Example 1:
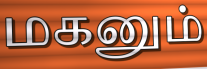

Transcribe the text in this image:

மகனும்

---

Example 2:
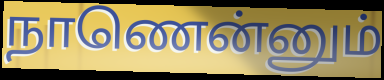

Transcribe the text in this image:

நாணென்னும்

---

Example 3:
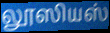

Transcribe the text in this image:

லூஸியஸ்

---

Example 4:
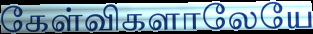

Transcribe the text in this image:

கேள்விகளாலேயே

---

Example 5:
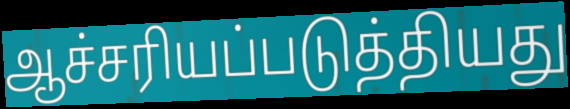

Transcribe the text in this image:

ஆச்சரியப்படுத்தியது